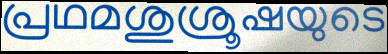
പ്രഥമശുശ്രൂഷയുടെ